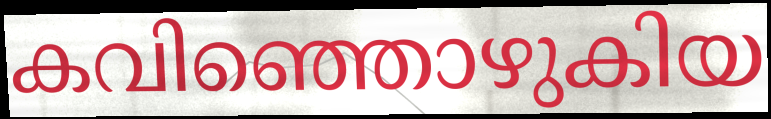
കവിഞ്ഞൊഴുകിയ